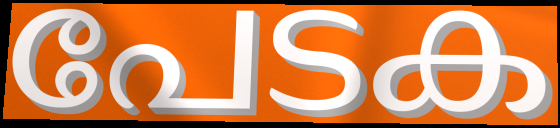
പേടക